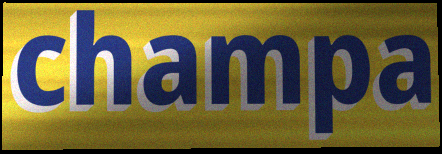
champa